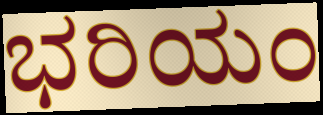
ಭರಿಯಂ